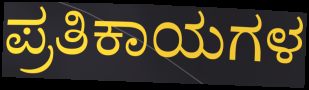
ಪ್ರತಿಕಾಯಗಳ